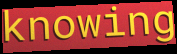
knowing